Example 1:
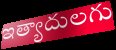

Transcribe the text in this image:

ఇత్యాదులగు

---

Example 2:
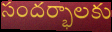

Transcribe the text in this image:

సందర్భాలకు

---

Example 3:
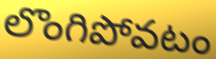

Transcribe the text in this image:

లొంగిపోవటం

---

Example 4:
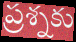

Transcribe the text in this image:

ప్రశ్నకు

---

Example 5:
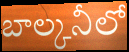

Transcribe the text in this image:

బాల్కనీలో